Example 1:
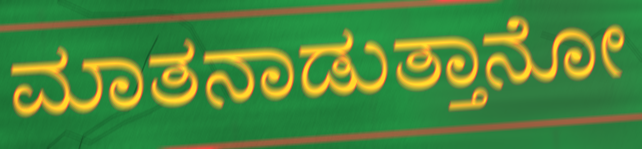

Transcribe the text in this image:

ಮಾತನಾಡುತ್ತಾನೋ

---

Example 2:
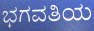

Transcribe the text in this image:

ಭಗವತಿಯ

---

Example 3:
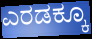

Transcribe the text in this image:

ಎರಡಕ್ಕೂ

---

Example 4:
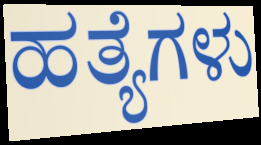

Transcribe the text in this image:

ಹತ್ಯೆಗಳು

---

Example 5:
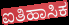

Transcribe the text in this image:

ಐತಿಹಾಸಿಕ